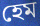
হেম